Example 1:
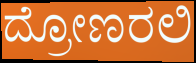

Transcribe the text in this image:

ದ್ರೋಣರಲಿ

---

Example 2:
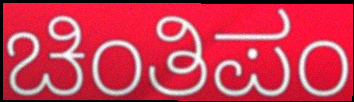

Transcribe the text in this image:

ಚಿಂತಿಪಂ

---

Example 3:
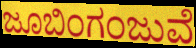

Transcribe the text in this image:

ಜೂಬಿಂಗಂಜುವೆ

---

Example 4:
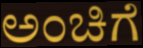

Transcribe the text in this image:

ಅಂಚಿಗೆ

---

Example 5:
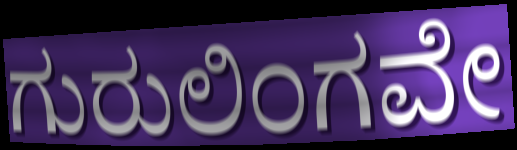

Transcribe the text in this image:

ಗುರುಲಿಂಗವೇ